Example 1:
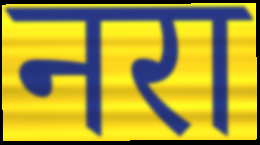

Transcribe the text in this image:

नरा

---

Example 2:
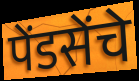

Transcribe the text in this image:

पेंडसेंचे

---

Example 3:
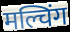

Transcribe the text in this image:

मल्चिंग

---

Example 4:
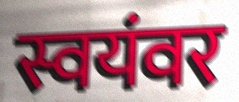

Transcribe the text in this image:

स्वयंवर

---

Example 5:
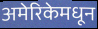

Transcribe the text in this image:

अमेरिकेमधून